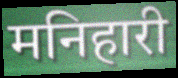
मनिहारी